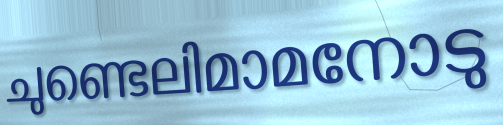
ചുണ്ടെലിമാമനോടു